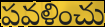
పవళించు